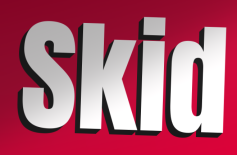
Skid